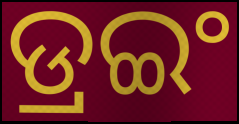
ଡ୍ରଇଂ